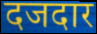
दजदार